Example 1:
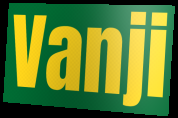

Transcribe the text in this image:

Vanji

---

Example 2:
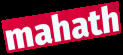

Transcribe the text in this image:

mahath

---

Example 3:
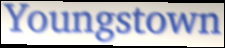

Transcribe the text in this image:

Youngstown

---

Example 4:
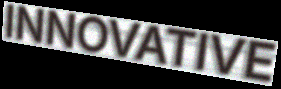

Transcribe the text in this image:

INNOVATIVE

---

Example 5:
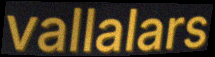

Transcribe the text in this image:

vallalars